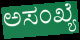
ಅಸಂಖ್ಯೆ